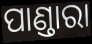
ପାଣ୍ଡାରା